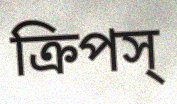
ক্রিপস্